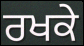
ਰਖਕੇ